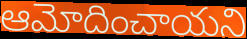
ఆమోదించాయని